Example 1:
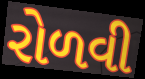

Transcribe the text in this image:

રોળવી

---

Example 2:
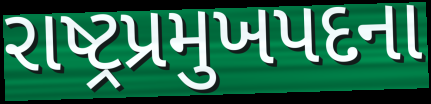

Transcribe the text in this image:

રાષ્ટ્રપ્રમુખપદના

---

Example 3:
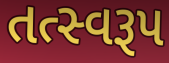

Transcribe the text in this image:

તત્સ્વરૂપ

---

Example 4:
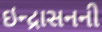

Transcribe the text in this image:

ઇન્દ્રાસનની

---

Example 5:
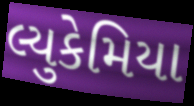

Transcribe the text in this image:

લ્યુકેમિયા